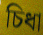
চিধা